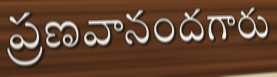
ప్రణవానందగారు